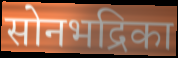
सोनभद्रिका